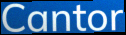
Cantor